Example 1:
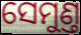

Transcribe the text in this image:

ସେମୁଣ୍ତ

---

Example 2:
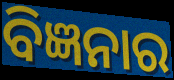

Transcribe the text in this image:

ବିଜ୍ଞନାର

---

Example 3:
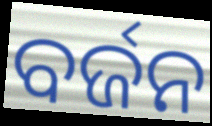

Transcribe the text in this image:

ବର୍ଜନ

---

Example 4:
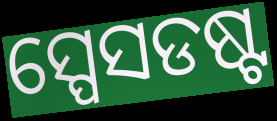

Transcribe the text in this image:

ସ୍ପେସଡଷ୍ଟ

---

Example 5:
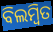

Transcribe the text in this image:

ବିଲମ୍ବିତ